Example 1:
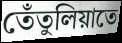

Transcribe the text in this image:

তেঁতুলিয়াতে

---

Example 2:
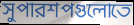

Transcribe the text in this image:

সুপারশপগুলোতে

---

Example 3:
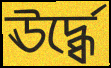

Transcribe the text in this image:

ঊর্দ্ধ্বে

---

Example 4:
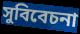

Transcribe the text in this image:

সুবিবেচনা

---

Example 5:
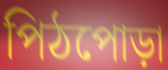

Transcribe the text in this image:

পিঠপোড়া